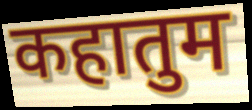
कहातुम